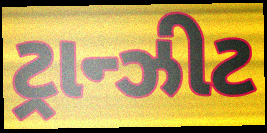
ટ્રાન્ઝીટ